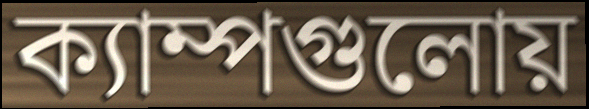
ক্যাম্পগুলোয়